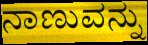
ನಾಣುವನ್ನು